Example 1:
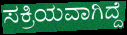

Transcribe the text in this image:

ಸಕ್ರಿಯವಾಗಿದ್ದೆ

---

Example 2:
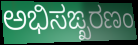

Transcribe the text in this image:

ಅಭಿಸಙ್ಖರಣಂ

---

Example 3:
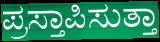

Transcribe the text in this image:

ಪ್ರಸ್ತಾಪಿಸುತ್ತಾ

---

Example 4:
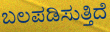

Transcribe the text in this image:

ಬಲಪಡಿಸುತ್ತಿದೆ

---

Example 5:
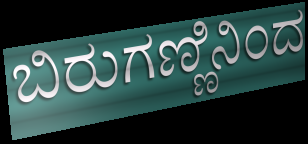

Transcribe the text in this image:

ಬಿರುಗಣ್ಣಿನಿಂದ